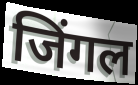
जिंगल